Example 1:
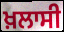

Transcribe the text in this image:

ਖ਼ਲਾਸੀ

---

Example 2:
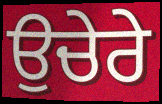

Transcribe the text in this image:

ਉਚੇਰੇ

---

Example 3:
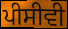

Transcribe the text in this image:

ਪੀਸੀਵੀ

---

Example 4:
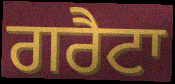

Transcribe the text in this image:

ਗਰੈਟਾ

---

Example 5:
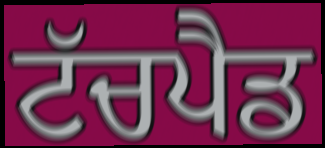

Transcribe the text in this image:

ਟੱਚਪੈਡ